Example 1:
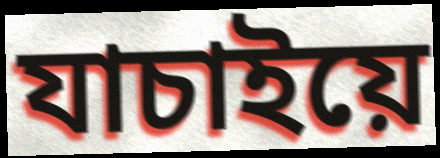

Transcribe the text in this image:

যাচাইয়ে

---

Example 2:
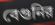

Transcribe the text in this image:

বেগুনির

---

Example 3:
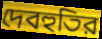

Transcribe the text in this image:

দেবহুতির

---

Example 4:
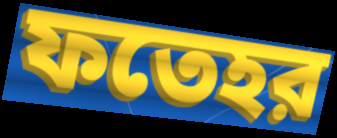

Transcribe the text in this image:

ফতেহর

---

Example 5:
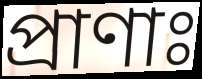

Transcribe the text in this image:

প্রাণাঃ